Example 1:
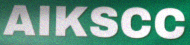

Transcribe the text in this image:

AIKSCC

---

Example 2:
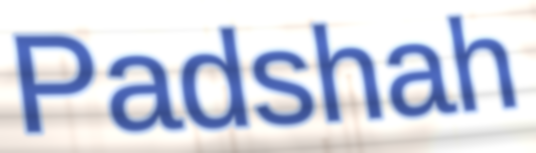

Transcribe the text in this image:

Padshah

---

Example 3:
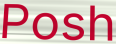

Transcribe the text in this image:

Posh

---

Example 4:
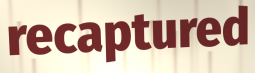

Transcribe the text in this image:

recaptured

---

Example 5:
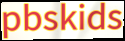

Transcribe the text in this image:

pbskids